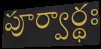
పూర్వార్థః